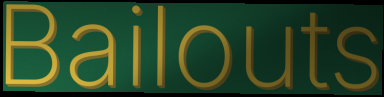
Bailouts